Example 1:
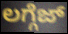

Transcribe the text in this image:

ಲಗ್ಗೆಜ್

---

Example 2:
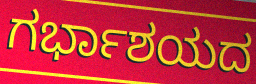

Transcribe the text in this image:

ಗರ್ಭಾಶಯದ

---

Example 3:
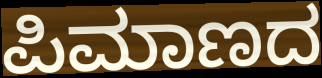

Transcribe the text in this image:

ಪಿಮಾಣದ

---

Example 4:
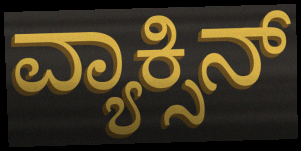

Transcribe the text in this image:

ವ್ಯಾಕ್ಸಿನ್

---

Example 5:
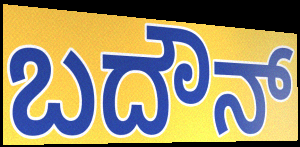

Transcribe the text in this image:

ಬದೌನ್